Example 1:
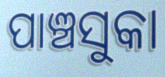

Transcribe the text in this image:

ପାଞ୍ଚସୁକା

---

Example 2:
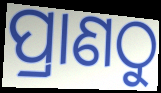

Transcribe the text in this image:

ପ୍ରାଣଠୁ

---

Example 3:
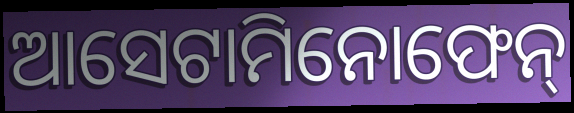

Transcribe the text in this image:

ଆସେଟାମିନୋଫେନ୍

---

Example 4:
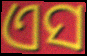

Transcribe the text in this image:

ଏସ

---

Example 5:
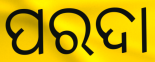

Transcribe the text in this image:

ପରଦା